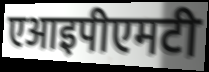
एआइपीएमटी